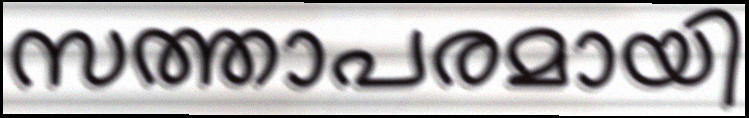
സത്താപരമായി